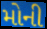
મોની